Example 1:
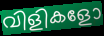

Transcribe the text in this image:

വിളികളോ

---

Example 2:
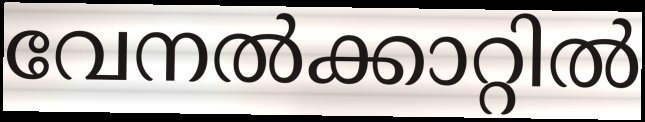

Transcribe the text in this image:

വേനൽക്കാറ്റിൽ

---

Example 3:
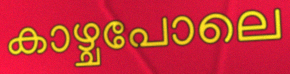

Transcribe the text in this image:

കാഴ്ചപോലെ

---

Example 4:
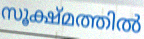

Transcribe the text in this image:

സൂക്ഷ്മത്തിൽ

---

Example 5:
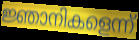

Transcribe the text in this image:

ജ്ഞാനികളെന്ന്